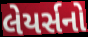
લેયર્સનો